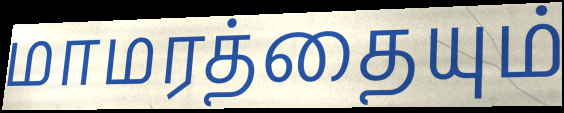
மாமரத்தையும்